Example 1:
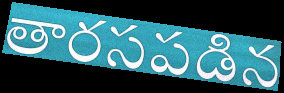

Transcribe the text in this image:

తారసపడిన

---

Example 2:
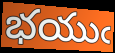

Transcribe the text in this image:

భయుఁ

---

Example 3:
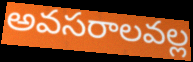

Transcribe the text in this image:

అవసరాలవల్ల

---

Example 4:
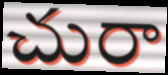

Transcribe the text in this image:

చురా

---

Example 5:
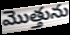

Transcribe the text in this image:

మొత్తును